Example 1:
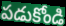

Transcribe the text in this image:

పడుకోండి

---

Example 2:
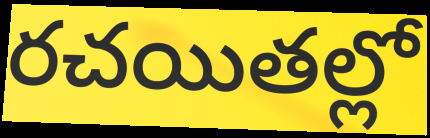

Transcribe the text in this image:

రచయితల్లో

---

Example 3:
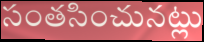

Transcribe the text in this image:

సంతసించునట్లు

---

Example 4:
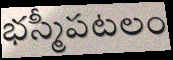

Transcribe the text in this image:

భస్మీపటలం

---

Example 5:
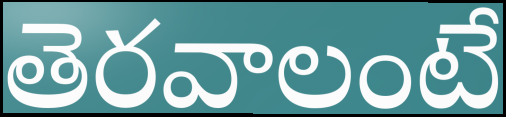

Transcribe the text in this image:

తెరవాలంటే